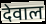
देवाल